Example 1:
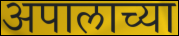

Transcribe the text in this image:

अपालाच्या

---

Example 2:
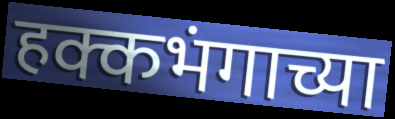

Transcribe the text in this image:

हक्कभंगाच्या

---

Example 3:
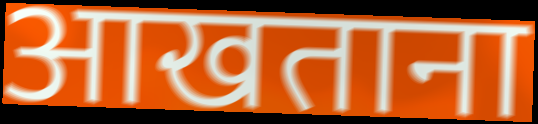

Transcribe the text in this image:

आखताना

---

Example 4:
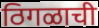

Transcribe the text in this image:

ठिगळाची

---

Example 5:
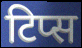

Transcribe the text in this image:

टिप्स